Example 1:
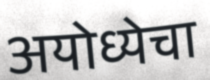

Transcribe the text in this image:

अयोध्येचा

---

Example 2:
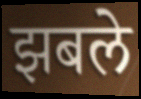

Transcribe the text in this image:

झबले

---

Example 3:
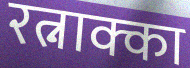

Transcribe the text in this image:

रत्नाक्का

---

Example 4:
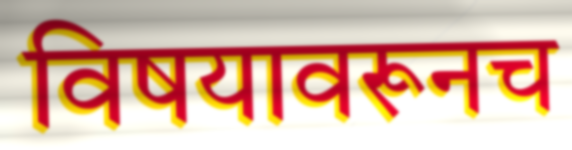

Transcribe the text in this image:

विषयावरूनच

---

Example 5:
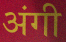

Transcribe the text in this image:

अंगी